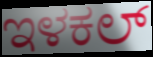
ಇಳಕಲ್